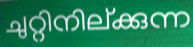
ചുറ്റിനില്ക്കുന്ന